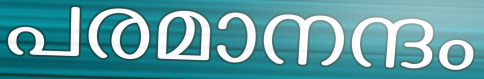
പരമാനന്ദം